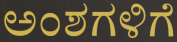
ಅಂಶಗಳಿಗೆ